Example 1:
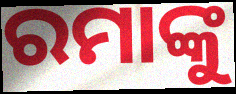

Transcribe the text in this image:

ରମାଙ୍କୁ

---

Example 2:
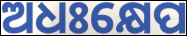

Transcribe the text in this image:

ଅଧଃକ୍ଷେପ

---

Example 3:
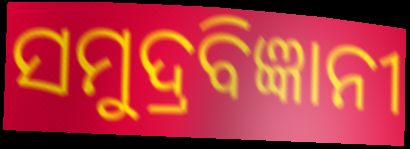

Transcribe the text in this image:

ସମୁଦ୍ରବିଜ୍ଞାନୀ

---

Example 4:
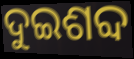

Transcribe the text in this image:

ଦୁଇଶବ୍ଦ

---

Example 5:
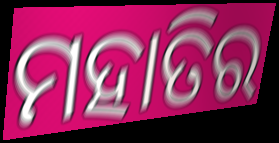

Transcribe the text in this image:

ମହାତିର